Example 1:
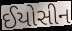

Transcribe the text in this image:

ઈયોસીન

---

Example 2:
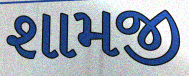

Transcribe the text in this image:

શામજી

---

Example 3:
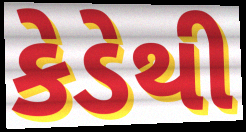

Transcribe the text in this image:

કેડેથી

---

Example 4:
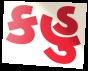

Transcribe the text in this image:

કહુ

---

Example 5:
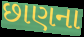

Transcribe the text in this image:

છાણના